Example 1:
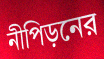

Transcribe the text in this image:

নীপিড়নের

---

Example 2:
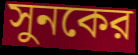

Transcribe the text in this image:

সুনকের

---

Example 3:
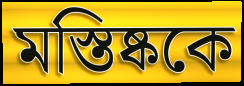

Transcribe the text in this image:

মস্তিষ্ককে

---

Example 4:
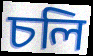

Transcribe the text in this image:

চলি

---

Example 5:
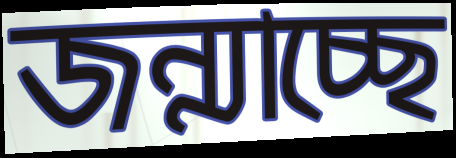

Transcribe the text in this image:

জন্মাচ্ছে